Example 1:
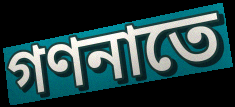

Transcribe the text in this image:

গণনাতে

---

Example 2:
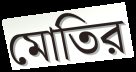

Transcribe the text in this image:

মোতির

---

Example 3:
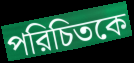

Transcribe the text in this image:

পরিচিতকে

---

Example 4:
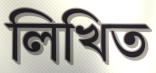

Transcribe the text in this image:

লিখিত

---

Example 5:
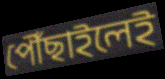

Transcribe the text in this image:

পৌঁছাইলেই